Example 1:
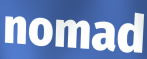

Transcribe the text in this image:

nomad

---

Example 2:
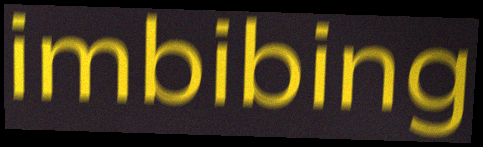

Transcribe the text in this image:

imbibing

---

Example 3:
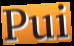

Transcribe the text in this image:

Pui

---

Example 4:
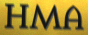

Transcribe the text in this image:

HMA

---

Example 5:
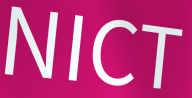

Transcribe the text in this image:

NICT